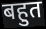
बहुत